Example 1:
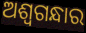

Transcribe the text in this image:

ଅଶ୍ୱଗନ୍ଧାର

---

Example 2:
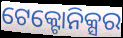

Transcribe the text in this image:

ଟେକ୍ଟୋନିକ୍ସର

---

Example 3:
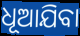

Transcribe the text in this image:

ଧୂଆଯିବା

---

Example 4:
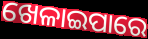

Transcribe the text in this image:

ଖେଳାଇପାରେ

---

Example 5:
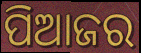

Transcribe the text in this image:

ପିଆଜର